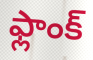
ఫ్లాంక్